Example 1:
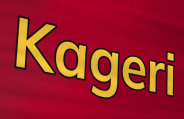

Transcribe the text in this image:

Kageri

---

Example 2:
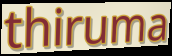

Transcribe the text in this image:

thiruma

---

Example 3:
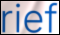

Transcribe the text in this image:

rief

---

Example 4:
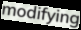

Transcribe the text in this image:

modifying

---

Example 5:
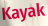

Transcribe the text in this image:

Kayak